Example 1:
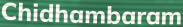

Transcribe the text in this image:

Chidhambaram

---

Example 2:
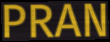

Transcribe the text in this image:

PRAN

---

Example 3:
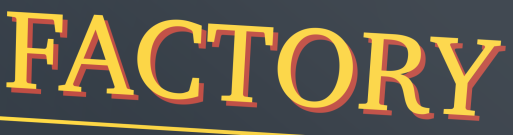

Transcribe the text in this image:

FACTORY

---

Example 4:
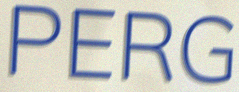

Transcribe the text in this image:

PERG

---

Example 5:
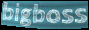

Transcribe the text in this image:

bigboss